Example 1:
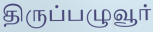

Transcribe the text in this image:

திருப்பழுவூர்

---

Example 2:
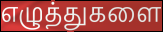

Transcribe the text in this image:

எழுத்துகளை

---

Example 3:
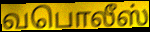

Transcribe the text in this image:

வபொலீஸ்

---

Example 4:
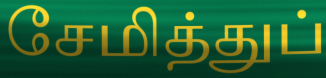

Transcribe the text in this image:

சேமித்துப்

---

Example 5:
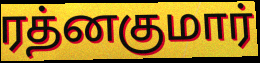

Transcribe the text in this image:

ரத்னகுமார்